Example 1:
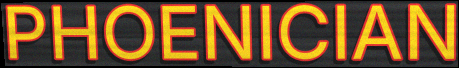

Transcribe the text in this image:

PHOENICIAN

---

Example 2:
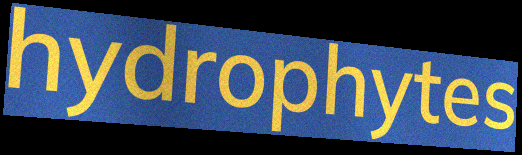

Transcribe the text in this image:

hydrophytes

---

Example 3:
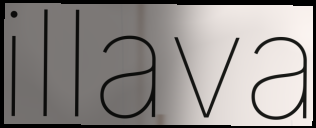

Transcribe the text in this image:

illava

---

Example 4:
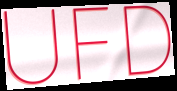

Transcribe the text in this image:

UFD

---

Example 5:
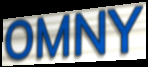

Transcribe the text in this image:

OMNY